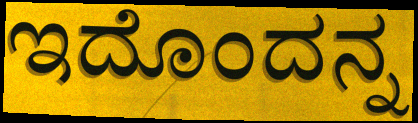
ಇದೊಂದನ್ನ